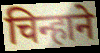
चिन्हाने